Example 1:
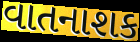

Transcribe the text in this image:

વાતનાશક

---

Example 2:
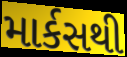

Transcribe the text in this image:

માર્કસથી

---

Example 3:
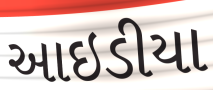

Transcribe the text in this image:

આઇડીયા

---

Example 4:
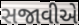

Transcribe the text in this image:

સજાવીએ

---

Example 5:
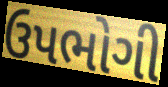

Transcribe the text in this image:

ઉપભોગી